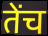
तेंच